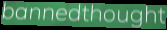
bannedthought